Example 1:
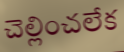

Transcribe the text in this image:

చెల్లించలేక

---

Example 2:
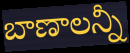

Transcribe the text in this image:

బాణాలన్నీ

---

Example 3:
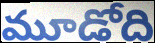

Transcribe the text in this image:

మూడోది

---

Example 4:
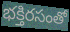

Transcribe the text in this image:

భక్తిరసంతో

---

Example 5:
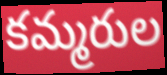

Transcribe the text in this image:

కమ్మరుల